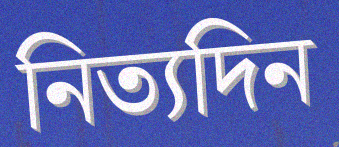
নিত্যদিন